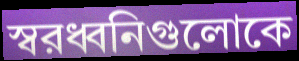
স্বরধ্বনিগুলোকে